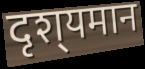
दृश्यमान